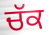
ਚੱਕ